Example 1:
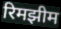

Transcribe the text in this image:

रिमझीम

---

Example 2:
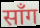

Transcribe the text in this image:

साँग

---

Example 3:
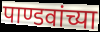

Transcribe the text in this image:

पाण्डवांच्या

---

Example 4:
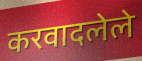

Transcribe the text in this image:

करवादलेले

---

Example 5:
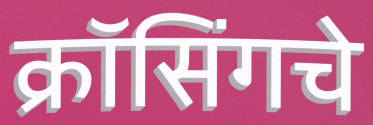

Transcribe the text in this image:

क्रॉसिंगचे